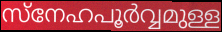
സ്നേഹപൂർവ്വമുള്ള